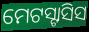
ମେଟସ୍ଟାସିସ